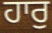
ਹਾਰੁ